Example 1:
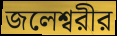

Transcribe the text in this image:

জলেশ্বরীর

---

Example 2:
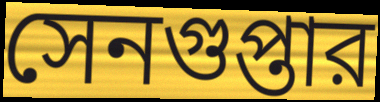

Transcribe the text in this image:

সেনগুপ্তার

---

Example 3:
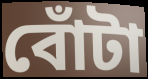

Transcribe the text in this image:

বোঁটা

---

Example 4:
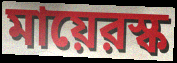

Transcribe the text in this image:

মায়েরস্ক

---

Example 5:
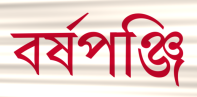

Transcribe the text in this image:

বর্ষপঞ্জি